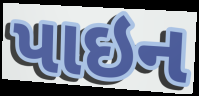
પાઇન